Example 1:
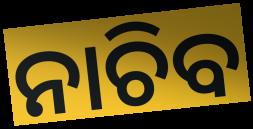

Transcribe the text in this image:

ନାଚିବ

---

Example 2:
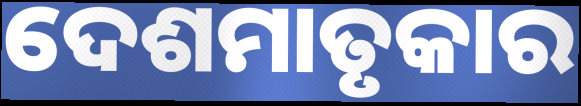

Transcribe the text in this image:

ଦେଶମାତୃକାର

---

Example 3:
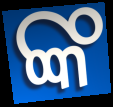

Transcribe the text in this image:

ଙ୍କ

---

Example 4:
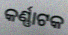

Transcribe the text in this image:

କର୍ଣ୍ଣାଟକ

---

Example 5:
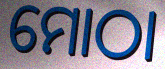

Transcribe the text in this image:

ମୋଠା